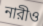
নারীও